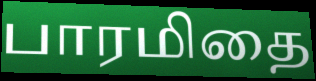
பாரமிதை